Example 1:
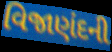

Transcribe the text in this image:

વિજાણંદની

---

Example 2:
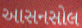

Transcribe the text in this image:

આસનસોલ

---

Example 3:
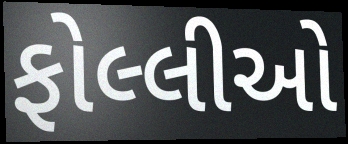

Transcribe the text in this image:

ફોલ્લીઓ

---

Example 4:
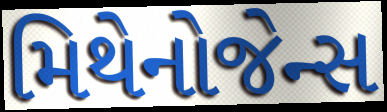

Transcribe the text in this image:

મિથેનોજેન્સ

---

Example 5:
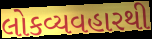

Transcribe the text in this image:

લોકવ્યવહારથી